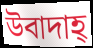
উবাদাহ্